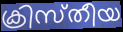
ക്രിസ്‌തീയ